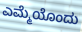
ಎಮ್ಮೆಯೊಂದು